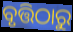
ବୃତ୍ତିଠାରୁ